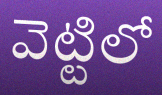
వెట్టిలో